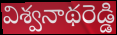
విశ్వనాథరెడ్డి